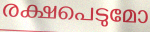
രക്ഷപെടുമോ